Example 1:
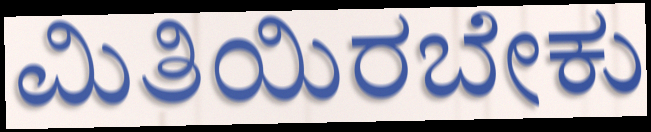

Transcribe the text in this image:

ಮಿತಿಯಿರಬೇಕು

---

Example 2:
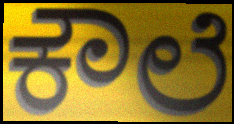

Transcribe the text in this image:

ಕೌಲೆ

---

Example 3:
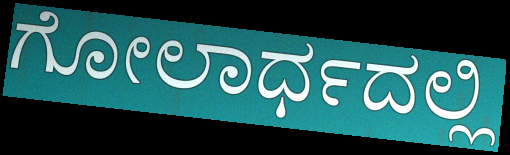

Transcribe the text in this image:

ಗೋಲಾರ್ಧದಲ್ಲಿ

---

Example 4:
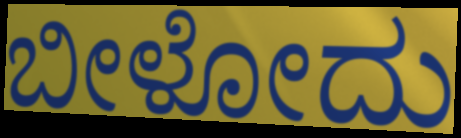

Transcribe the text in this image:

ಬೀಳೋದು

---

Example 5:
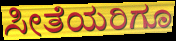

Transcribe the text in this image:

ಸೀತೆಯರಿಗೂ